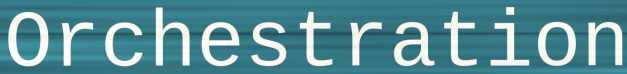
Orchestration